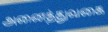
அனைத்துவகை